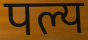
पल्य